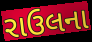
રાઉલના